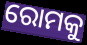
ରୋମକୁ